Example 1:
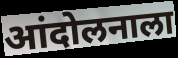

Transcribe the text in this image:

आंदोलनाला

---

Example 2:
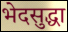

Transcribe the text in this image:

भेदसुद्धा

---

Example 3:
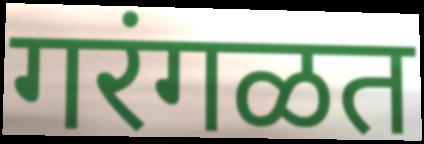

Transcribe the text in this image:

गरंगळत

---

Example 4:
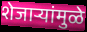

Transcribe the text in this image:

शेजाऱ्यांमुळे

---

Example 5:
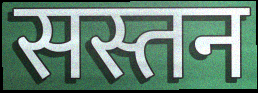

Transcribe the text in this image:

सस्तन